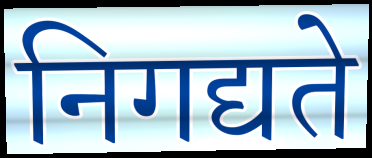
निगद्यते